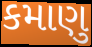
કમાણુ